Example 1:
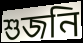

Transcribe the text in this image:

শুজনি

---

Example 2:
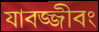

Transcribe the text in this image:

যাবজ্জীবং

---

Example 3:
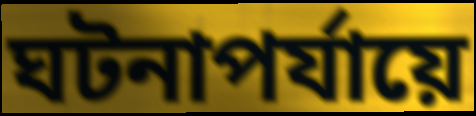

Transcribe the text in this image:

ঘটনাপর্যায়ে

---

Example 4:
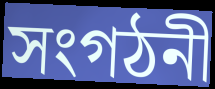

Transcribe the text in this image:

সংগঠনী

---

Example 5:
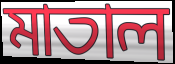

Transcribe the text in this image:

মাতাল